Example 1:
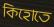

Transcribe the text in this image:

কিহোতে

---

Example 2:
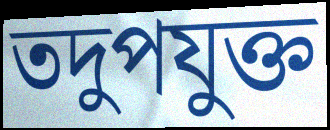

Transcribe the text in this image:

তদুপযুক্ত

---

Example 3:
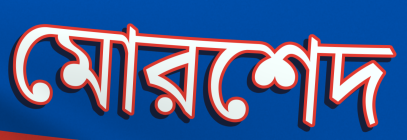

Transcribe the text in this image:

মোরশেদ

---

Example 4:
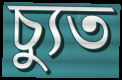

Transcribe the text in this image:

চ্যুত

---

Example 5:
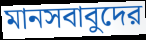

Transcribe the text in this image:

মানসবাবুদের